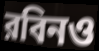
রবিনও